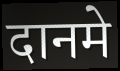
दानमे